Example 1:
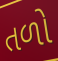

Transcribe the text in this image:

તળો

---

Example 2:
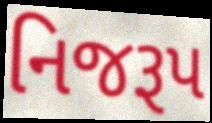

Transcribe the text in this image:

નિજરૂપ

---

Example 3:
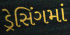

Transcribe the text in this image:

ડ્રેસિંગમાં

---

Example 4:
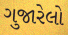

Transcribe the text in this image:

ગુજારેલો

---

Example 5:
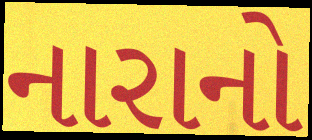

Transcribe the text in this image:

નારાનો